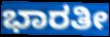
ಭಾರತೀ